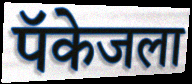
पॅकेजला